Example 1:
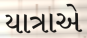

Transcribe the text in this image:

યાત્રાએ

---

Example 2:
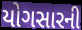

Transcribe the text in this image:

યોગસારની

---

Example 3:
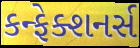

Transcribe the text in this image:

કન્ફેક્શનર્સ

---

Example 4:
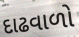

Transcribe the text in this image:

દાઢવાળો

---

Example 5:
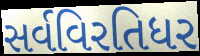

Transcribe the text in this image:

સર્વવિરતિધર